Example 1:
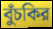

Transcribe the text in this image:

বুঁচকির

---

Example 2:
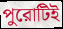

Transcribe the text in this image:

পুরোটিই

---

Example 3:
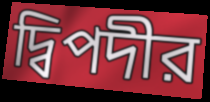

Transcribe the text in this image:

দ্বিপদীর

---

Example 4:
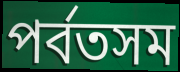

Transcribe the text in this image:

পর্বতসম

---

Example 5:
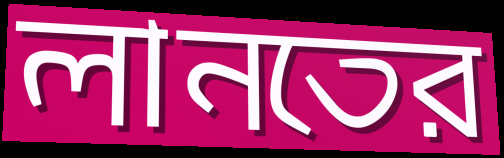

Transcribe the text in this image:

লানতের